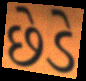
છેડે